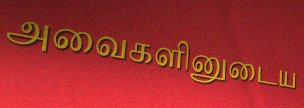
அவைகளினுடைய